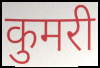
कुमरी